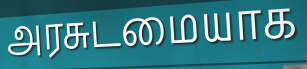
அரசுடமையாக